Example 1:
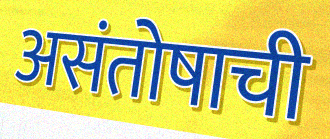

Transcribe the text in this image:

असंतोषाची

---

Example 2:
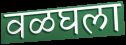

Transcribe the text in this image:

वळघला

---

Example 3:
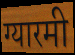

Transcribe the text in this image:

ग्यारमी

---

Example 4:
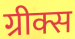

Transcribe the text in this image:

ग्रीक्स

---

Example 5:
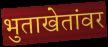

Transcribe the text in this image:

भुताखेतांवर